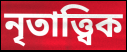
নৃতাত্ত্বিক